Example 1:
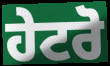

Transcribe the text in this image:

ਹੇਟਰੋ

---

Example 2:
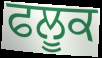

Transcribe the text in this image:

ਫਲੂਕ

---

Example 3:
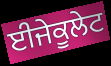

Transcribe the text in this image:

ਈਜੇਕੂਲੇਟ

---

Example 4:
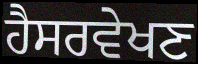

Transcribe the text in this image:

ਹੈਸਰਵੇਖਣ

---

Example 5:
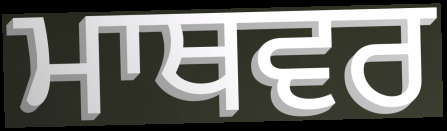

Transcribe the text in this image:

ਮਾਥਵਰ